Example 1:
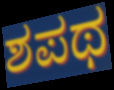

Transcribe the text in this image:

ಶಪಥ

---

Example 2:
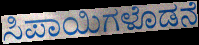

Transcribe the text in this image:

ಸಿಪಾಯಿಗಳೊಡನೆ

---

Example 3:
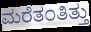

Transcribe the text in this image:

ಮರೆತಂತಿತ್ತು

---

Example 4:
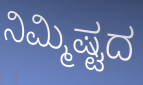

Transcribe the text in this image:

ನಿಮ್ಮಿಷ್ಟದ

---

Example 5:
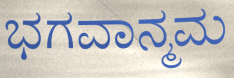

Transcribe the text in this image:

ಭಗವಾನ್ಮಮ